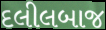
દલીલબાજ